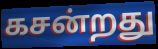
கசன்றது